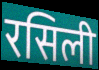
रसिली